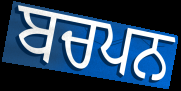
ਬਚਪਨ